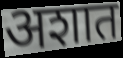
अशात